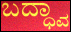
ಬದ್ಧ್ವಾ